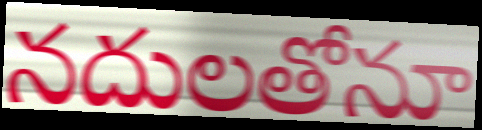
నదులతోనూ